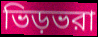
ভিড়ভরা